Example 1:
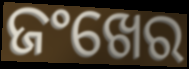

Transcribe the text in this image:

ଜଂଖେର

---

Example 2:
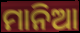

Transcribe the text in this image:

ମାନିଆ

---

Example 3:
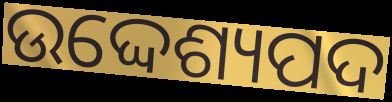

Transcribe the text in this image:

ଉଦ୍ଦେଶ୍ୟପଦ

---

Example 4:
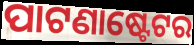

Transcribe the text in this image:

ପାଟଣାଷ୍ଟେଟର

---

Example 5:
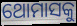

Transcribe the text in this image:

ଥୋମାସକୁ